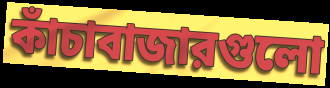
কাঁচাবাজারগুলো